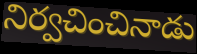
నిర్వచించినాడు